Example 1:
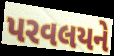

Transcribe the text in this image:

પરવલયને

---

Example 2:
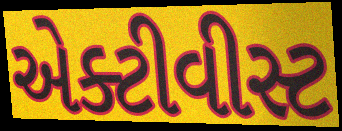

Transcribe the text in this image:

એક્ટીવીસ્ટ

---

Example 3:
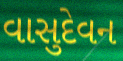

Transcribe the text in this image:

વાસુદેવન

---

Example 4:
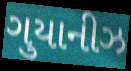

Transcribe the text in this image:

ગુયાનીઝ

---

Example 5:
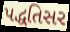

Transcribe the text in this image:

પદ્ધતિસર